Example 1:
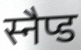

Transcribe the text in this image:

स्नैप्ड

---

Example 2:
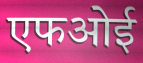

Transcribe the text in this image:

एफओई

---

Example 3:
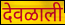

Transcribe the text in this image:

देवळाली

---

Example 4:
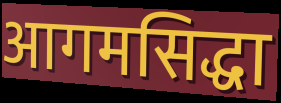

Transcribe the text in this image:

आगमसिद्धा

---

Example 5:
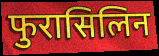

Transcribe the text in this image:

फुरासिलिन